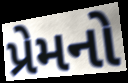
પ્રેમનો